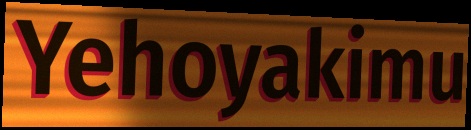
Yehoyakimu